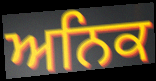
ਅਨਿਕ